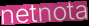
netnota